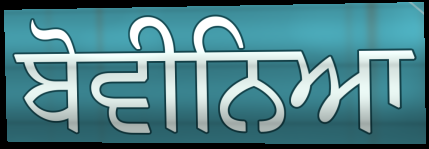
ਬੋਵੀਨਿਆ